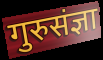
गुरुसंज्ञा